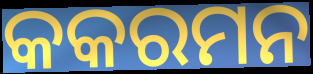
କକରମନ